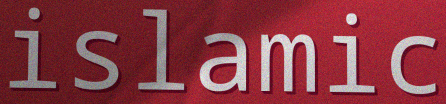
islamic